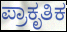
ಪ್ರಾಕೃತಿಕ